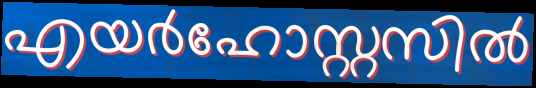
എയർഹോസ്റ്റസിൽ